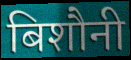
बिशौनी